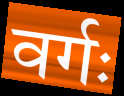
वर्गः